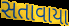
સતાવાયા